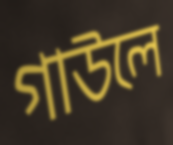
গাউলে